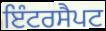
ਇੰਟਰਸੈਪਟ